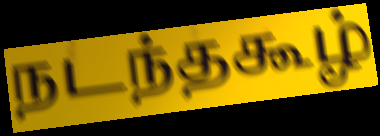
நடந்தகூழ்